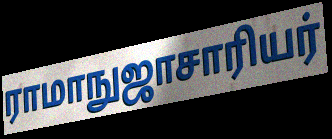
ராமாநுஜாசாரியர்